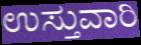
ಉಸ್ತುವಾರಿ